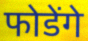
फोडेंगे